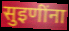
सुइणींना